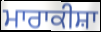
ਮਾਰਾਕੀਸ਼ਾ